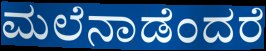
ಮಲೆನಾಡೆಂದರೆ